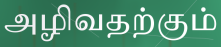
அழிவதற்கும்